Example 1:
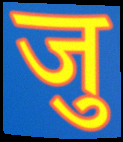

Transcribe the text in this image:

जु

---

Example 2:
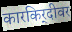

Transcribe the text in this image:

कारकिर्दीवर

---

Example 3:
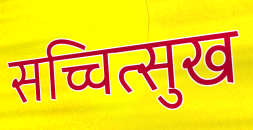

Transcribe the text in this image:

सच्चित्सुख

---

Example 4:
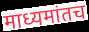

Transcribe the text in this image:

माध्यमांतच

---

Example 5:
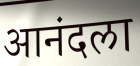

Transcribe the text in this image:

आनंदला